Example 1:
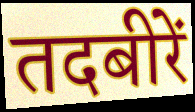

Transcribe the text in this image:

तदबीरें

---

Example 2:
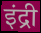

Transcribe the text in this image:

इंद्री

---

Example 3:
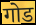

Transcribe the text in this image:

गोड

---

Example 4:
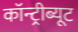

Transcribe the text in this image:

कॉन्ट्रीब्यूट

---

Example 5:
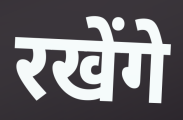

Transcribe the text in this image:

रखेंगे